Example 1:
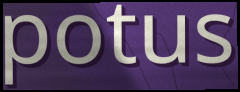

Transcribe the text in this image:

potus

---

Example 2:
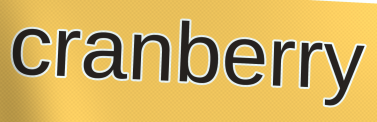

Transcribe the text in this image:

cranberry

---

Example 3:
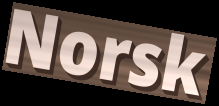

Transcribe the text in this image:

Norsk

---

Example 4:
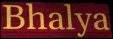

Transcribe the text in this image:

Bhalya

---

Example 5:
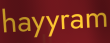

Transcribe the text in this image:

hayyram